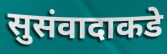
सुसंवादाकडे